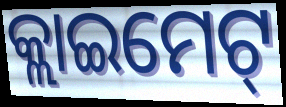
କ୍ଲାଇମେଟ୍